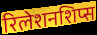
रिलेशनशिप्स